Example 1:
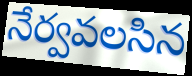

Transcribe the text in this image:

నేర్వవలసిన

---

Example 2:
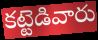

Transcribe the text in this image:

కట్టెడివారు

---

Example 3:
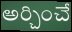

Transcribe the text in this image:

అర్చించే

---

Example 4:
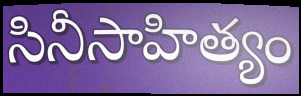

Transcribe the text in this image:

సినీసాహిత్యం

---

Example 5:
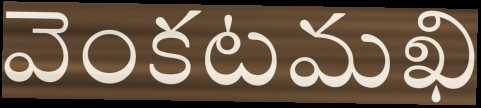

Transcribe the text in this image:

వెంకటమఖి